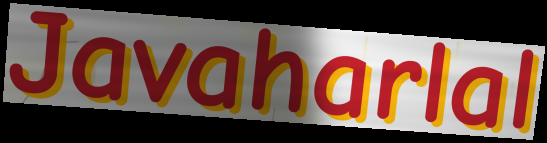
Javaharlal